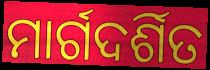
ମାର୍ଗଦର୍ଶିତ